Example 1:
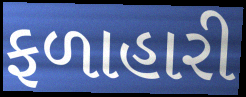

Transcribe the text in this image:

ફળાહારી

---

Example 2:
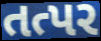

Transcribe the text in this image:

તત્પર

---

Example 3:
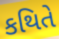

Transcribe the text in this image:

કથિતે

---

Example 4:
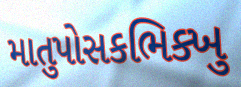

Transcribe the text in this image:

માતુપોસકભિક્ખુ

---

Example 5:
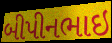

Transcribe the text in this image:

બીપીનભાઇ